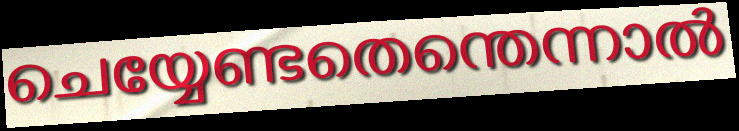
ചെയ്യേണ്ടതെന്തെന്നാൽ